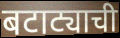
बटाट्याची